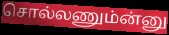
சொல்லணும்ன்னு